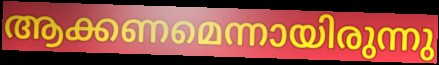
ആക്കണമെന്നായിരുന്നു